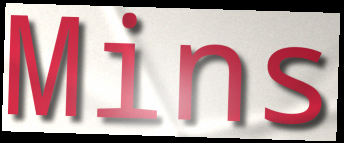
Mins